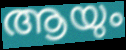
ആയും